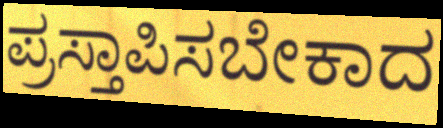
ಪ್ರಸ್ತಾಪಿಸಬೇಕಾದ